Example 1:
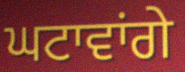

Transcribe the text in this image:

ਘਟਾਵਾਂਗੇ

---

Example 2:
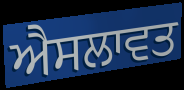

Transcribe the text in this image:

ਐਸਲਾਵਤ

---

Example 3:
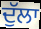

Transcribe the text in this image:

ਦੁੱਲਾ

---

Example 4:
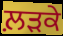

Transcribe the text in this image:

ਲ਼ਡ਼ਕੇ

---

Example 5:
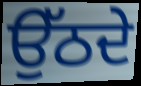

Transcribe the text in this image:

ਉੱਠਦੇ